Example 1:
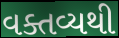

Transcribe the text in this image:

વક્તવ્યથી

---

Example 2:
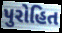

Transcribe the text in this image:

પુરોહિત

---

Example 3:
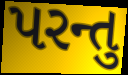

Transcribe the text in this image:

પરન્તુ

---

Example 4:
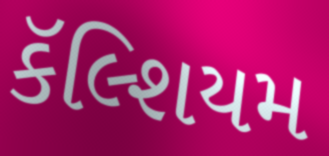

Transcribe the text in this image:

કૅલ્શિયમ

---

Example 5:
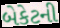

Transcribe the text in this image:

બેકેટની